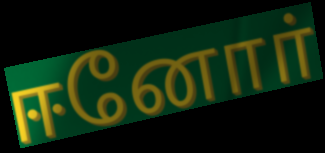
ஈனோர்